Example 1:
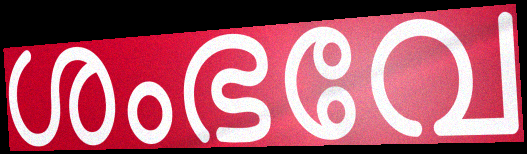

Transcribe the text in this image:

ശംഭവേ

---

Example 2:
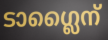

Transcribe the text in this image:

ടാഗ്ലൈന്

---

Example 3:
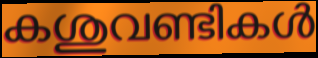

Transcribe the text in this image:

കശുവണ്ടികൾ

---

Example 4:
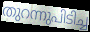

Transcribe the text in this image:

തുറന്നുപിടിച്ച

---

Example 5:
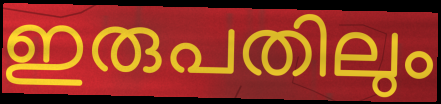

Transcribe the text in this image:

ഇരുപതിലും